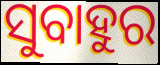
ସୁବାହୁର